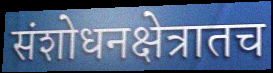
संशोधनक्षेत्रातच